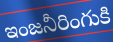
ఇంజనీరింగుకి